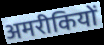
अमरीकियों